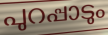
പുറപ്പാടും